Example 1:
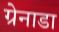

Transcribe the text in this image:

ग्रेनाडा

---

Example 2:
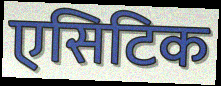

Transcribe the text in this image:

एसिटिक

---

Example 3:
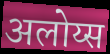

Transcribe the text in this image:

अलोय्स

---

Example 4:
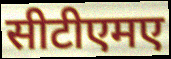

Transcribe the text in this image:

सीटीएमए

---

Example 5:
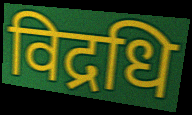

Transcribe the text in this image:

विद्रधि